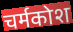
चर्मकोश